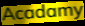
Acadamy